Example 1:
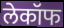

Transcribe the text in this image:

लेकॉफ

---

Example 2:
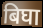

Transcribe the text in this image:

बिघा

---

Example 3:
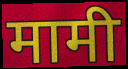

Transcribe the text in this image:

मामी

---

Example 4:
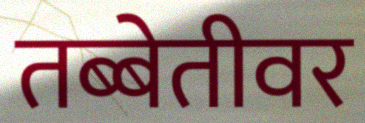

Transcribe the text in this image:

तब्बेतीवर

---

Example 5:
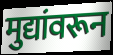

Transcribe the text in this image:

मुद्यांवरून